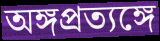
অঙ্গপ্রত্যঙ্গে